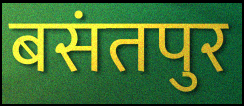
बसंतपुर